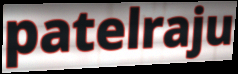
patelraju